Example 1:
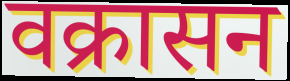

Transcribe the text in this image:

वक्रासन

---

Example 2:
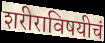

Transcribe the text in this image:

शरीराविषयीचं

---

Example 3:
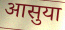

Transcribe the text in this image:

आसुया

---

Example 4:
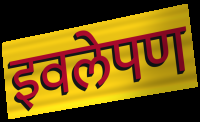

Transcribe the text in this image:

इवलेपण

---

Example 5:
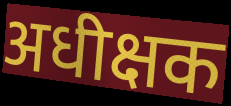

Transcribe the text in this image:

अधीक्षक